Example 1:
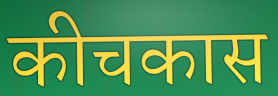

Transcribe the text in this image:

कीचकास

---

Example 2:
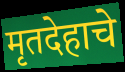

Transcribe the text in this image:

मृतदेहाचे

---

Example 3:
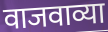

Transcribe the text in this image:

वाजवाव्या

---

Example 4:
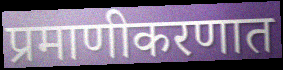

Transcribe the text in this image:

प्रमाणीकरणात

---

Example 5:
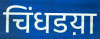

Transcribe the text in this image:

चिंधडय़ा